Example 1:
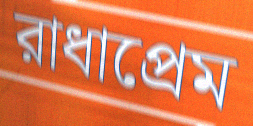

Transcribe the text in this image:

রাধাপ্রেম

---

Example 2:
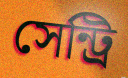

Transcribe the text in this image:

সেন্ট্রি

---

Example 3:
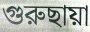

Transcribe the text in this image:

গুরুছায়া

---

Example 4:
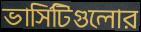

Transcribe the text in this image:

ভার্সিটিগুলোর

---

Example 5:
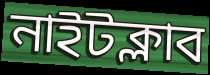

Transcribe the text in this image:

নাইটক্লাব